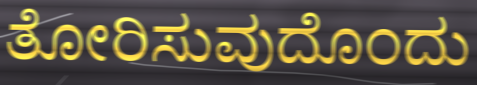
ತೋರಿಸುವುದೊಂದು